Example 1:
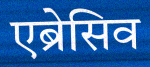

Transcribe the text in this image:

एब्रेसिव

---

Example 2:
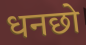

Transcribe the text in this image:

धनछो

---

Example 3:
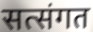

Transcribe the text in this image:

सत्संगत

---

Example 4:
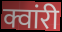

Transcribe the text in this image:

क्वांरी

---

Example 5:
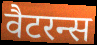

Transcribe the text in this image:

वैटरन्स